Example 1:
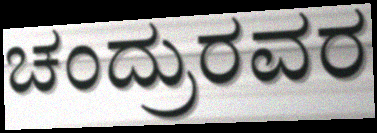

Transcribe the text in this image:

ಚಂದ್ರುರವರ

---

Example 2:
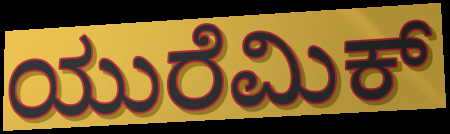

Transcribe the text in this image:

ಯುರೆಮಿಕ್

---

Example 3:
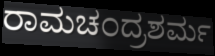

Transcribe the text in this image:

ರಾಮಚಂದ್ರಶರ್ಮ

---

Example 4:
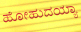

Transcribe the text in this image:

ಹೋಹುದಯ್ಯಾ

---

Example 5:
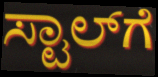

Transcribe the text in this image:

ಸ್ಟಾಲ್‌ಗೆ